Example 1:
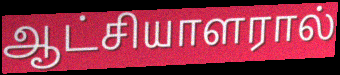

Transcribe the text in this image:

ஆட்சியாளரால்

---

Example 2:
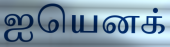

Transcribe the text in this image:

ஐயெனக்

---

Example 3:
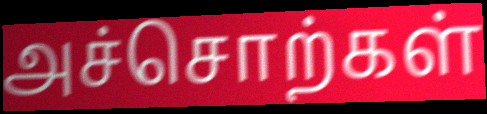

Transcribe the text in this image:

அச்சொற்கள்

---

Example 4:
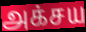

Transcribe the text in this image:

அக்சய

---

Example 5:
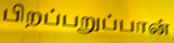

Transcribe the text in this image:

பிறப்பறுப்பான்